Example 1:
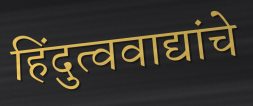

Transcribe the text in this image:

हिंदुत्ववाद्यांचे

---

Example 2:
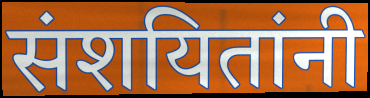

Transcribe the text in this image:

संशयितांनी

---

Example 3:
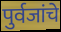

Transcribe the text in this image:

पुर्वजांचे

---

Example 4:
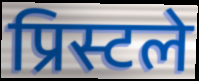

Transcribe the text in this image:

प्रिस्टले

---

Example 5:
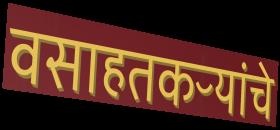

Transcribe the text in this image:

वसाहतकऱ्यांचे